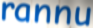
rannu